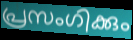
പ്രസംഗിക്കും